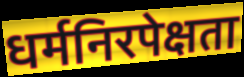
धर्मनिरपेक्षता